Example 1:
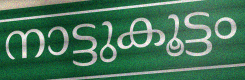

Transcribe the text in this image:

നാട്ടുകൂട്ടം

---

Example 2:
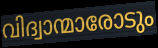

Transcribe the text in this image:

വിദ്വാന്മാരോടും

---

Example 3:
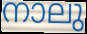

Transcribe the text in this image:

നാലു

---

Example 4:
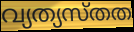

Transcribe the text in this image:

വ്യത്യസ്തത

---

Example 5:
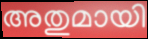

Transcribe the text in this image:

അതുമായി